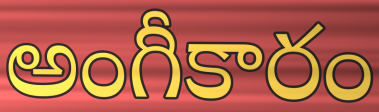
అంగీకారం